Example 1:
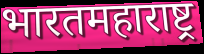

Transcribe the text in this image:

भारतमहाराष्ट्र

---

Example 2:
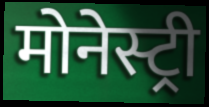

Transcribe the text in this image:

मोनेस्‍ट्री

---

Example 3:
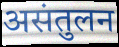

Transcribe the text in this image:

असंतुलन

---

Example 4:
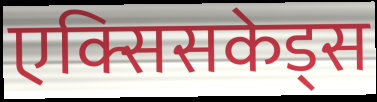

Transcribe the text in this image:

एक्सिसकेड्स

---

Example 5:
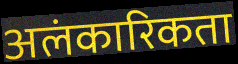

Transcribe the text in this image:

अलंकारिकता